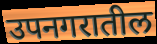
उपनगरातील